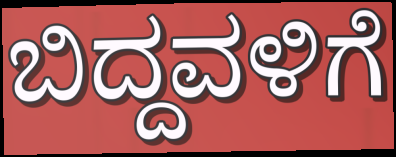
ಬಿದ್ದವಳಿಗೆ